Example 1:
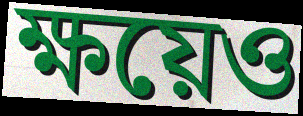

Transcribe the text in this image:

ক্ষয়েও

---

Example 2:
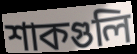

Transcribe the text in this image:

শাকগুলি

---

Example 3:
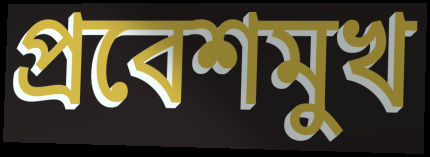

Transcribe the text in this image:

প্রবেশমুখ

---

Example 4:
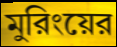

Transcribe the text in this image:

মুরিংয়ের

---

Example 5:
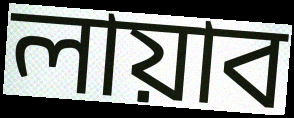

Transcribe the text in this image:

লায়াব